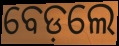
ବେଡ଼ଲେ